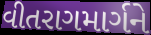
વીતરાગમાર્ગને